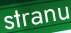
stranu